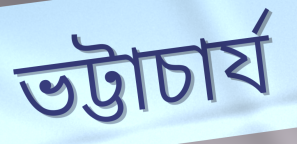
ভট্টাচার্য